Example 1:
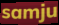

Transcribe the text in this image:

samju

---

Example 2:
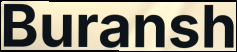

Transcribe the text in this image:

Buransh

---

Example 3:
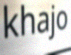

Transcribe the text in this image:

khajo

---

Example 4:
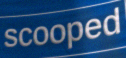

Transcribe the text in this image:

scooped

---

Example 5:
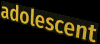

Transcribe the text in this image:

adolescent